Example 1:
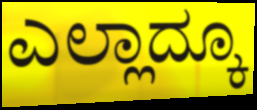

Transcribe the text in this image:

ಎಲ್ಲಾದ್ಕೂ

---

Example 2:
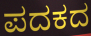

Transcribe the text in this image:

ಪದಕದ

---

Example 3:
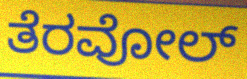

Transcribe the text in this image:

ತೆರವೋಲ್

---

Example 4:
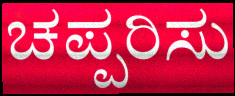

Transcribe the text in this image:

ಚಪ್ಪರಿಸು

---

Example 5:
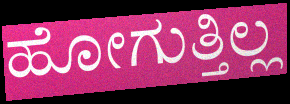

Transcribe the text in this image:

ಹೋಗುತ್ತಿಲ್ಲ